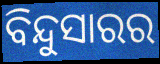
ବିନ୍ଦୁସାରର